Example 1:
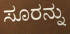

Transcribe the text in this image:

ಸೂರನ್ನು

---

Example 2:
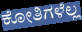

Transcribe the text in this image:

ಕೋತಿಗಳೆಲ್ಲ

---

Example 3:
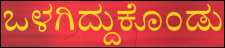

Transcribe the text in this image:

ಒಳಗಿದ್ದುಕೊಂಡು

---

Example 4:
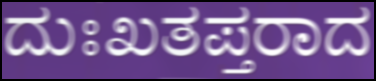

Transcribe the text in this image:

ದುಃಖತಪ್ತರಾದ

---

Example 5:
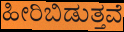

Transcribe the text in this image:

ಹೀರಿಬಿಡುತ್ತವೆ